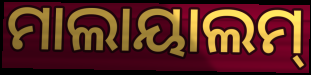
ମାଲାୟାଲମ୍